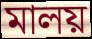
মালয়